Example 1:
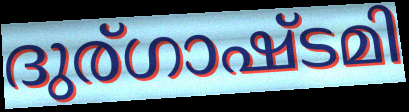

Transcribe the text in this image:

ദുര്ഗാഷ്ടമി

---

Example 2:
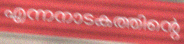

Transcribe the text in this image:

എന്നനാടകത്തിന്റെ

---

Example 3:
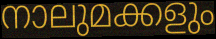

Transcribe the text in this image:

നാലുമക്കളും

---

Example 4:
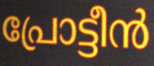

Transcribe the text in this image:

പ്രോട്ടീൻ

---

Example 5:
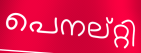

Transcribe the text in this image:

പെനല്റ്റി